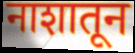
नाशातून